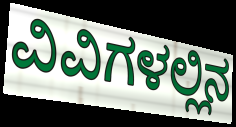
ವಿವಿಗಳಲ್ಲಿನ